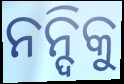
ନନ୍ଦିକୁ